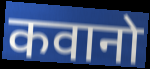
कवानो